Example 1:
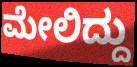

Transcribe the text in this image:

ಮೇಲಿದ್ದು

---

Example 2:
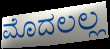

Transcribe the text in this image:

ಮೊದಲಲ್ಲ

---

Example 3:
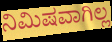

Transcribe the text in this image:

ನಿಮಿಷವಾಗಿಲ್ಲ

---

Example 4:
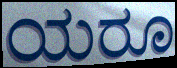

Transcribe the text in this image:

ಯರೂ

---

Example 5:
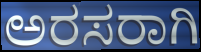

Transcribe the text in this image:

ಅರಸರಾಗಿ